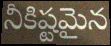
నీకిష్టమైన